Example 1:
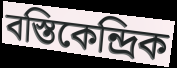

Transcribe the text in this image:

বস্তিকেন্দ্রিক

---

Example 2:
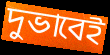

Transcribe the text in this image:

দুভাবেই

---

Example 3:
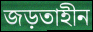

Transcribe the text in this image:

জড়তাহীন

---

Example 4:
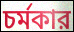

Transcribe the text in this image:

চর্মকার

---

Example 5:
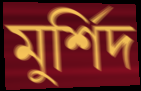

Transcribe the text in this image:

মুর্শিদ